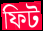
ফিট